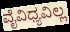
ವೈವಿಧ್ಯವಿಲ್ಲ